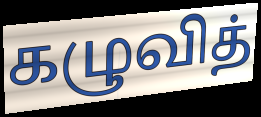
கழுவித்